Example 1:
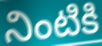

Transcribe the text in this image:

నింటికి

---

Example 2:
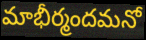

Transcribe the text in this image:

మాభీర్మందమనో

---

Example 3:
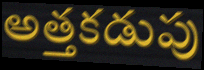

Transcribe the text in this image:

అత్తకడుపు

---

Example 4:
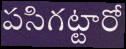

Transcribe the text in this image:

పసిగట్టారో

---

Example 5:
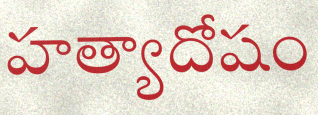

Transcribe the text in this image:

హత్యాదోషం